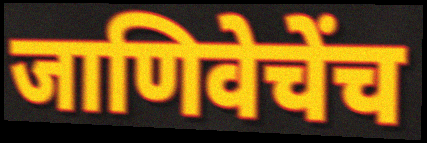
जाणिवेचेंच